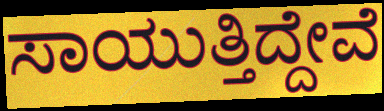
ಸಾಯುತ್ತಿದ್ದೇವೆ